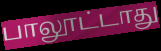
பாலூட்டாது